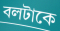
বলটাকে